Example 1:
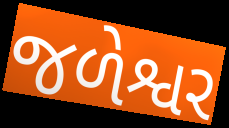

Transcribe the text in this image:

જળેશ્વર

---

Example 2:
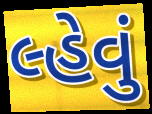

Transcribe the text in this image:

લ્હેવું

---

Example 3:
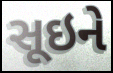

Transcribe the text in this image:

સૂઇને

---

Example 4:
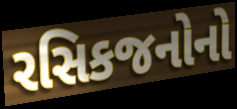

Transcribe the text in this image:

રસિકજનોનો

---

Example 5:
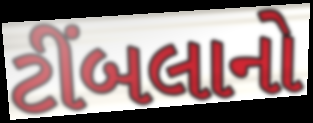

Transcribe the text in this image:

ટીંબલાનો